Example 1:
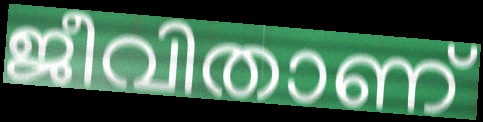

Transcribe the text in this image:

ജീവിതാണ്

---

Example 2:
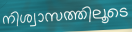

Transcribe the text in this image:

നിശ്വാസത്തിലൂടെ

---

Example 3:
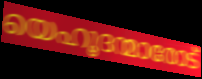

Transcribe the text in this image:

യെഹൂദന്മാരോട്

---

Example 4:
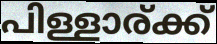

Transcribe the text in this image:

പിള്ളാര്ക്ക്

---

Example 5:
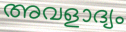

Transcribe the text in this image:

അവളാദ്യം